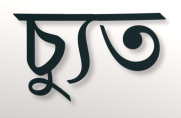
চ্যুত